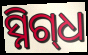
ସ୍ନିଗ୍‌ଧ